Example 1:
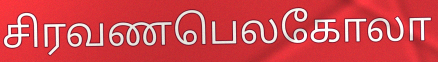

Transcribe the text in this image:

சிரவணபெலகோலா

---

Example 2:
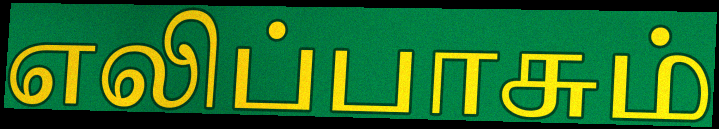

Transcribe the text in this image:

எலிப்பாசும்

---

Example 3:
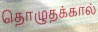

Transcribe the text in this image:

தொழுதக்கால்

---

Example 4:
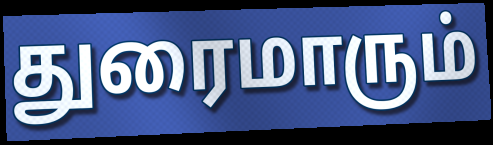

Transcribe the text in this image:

துரைமாரும்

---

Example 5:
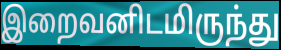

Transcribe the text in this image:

இறைவனிடமிருந்து